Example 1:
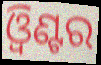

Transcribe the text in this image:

ଓ୍ଵିଣ୍ଟର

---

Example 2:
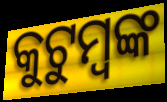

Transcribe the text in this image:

କୁଟୁମ୍ବଙ୍କ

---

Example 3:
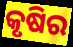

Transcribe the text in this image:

କୃଷିର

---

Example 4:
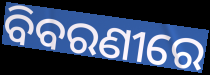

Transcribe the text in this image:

ବିବରଣୀରେ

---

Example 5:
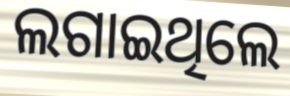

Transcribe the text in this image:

ଲଗାଇଥିଲେ